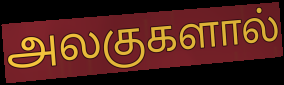
அலகுகளால்